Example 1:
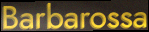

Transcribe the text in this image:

Barbarossa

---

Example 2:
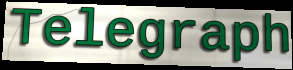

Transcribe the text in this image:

Telegraph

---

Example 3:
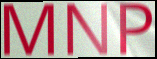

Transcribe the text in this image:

MNP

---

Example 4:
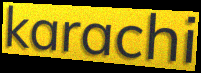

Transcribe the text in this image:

karachi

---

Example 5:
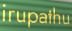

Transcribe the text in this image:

irupathu